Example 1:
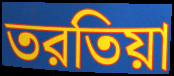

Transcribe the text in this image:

তরতিয়া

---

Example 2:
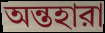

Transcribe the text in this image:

অন্তহারা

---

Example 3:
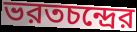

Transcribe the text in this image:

ভরতচন্দ্রের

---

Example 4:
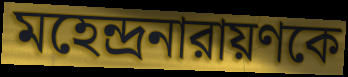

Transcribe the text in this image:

মহেন্দ্রনারায়ণকে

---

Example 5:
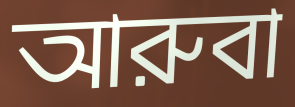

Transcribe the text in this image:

আরুবা